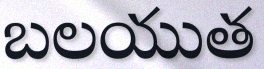
బలయుత